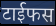
टाईफस